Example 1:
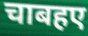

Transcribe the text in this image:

चाबहए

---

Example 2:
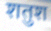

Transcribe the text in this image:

शतुश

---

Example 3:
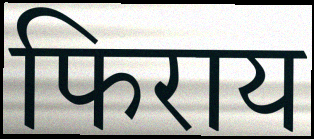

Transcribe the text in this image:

फिराय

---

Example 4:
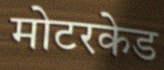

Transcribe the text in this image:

मोटरकेड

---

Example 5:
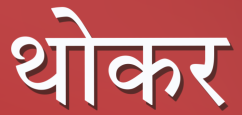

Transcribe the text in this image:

थोकर